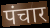
पंचार